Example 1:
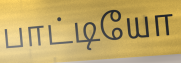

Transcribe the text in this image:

பாட்டியோ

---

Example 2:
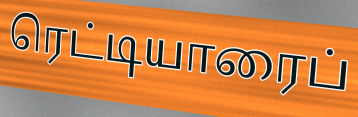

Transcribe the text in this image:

ரெட்டியாரைப்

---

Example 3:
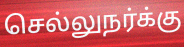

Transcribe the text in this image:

செல்லுநர்க்கு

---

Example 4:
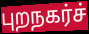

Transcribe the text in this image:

புறநகர்ச்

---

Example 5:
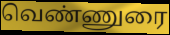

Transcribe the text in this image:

வெண்ணுரை